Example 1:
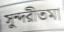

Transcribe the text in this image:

সুন্দরীতমা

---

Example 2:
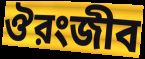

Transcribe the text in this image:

ঔরংজীব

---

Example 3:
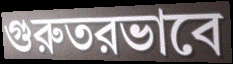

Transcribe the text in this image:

গুরুতরভাবে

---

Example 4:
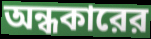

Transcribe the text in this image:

অন্ধকারের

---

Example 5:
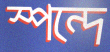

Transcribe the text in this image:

স্পন্দে